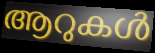
ആറുകൾ